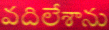
వదిలేశాను